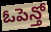
ఓపెన్తో